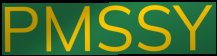
PMSSY